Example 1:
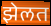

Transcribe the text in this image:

झेलत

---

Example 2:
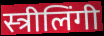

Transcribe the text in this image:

स्त्रीलिंगी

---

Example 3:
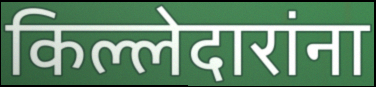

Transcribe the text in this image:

किल्लेदारांना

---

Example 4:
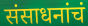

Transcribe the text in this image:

संसाधनांचं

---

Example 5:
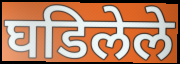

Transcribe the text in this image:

घडिलेले